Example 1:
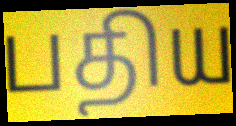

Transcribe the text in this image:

பதிய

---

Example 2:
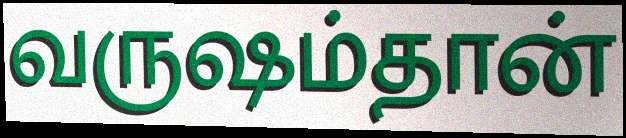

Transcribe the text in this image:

வருஷம்தான்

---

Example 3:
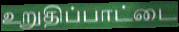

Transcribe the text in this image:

உறுதிப்பாட்டை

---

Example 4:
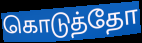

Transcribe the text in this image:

கொடுத்தோ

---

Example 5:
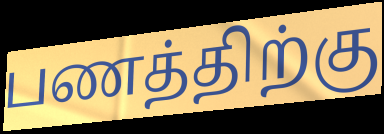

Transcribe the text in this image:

பணத்திற்கு